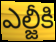
ఎల్జీకి